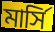
মার্সি